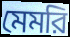
মেমরি